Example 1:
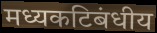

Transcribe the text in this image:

मध्यकटिबंधीय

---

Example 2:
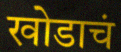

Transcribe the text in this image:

खोडाचं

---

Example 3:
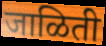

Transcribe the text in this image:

जाळिती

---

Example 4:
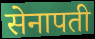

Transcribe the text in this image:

सेनापती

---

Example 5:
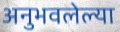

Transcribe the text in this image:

अनुभवलेल्या